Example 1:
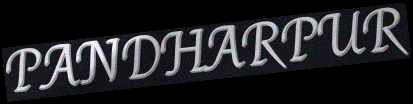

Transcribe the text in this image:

PANDHARPUR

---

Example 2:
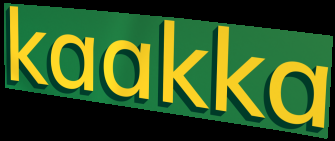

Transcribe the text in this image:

kaakka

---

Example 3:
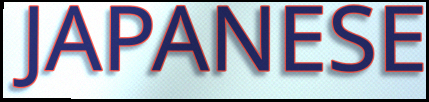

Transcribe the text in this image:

JAPANESE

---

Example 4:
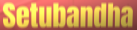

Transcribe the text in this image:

Setubandha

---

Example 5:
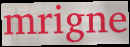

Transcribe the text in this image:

mrigne